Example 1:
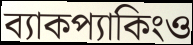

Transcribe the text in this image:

ব্যাকপ্যাকিংও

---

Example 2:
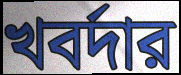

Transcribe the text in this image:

খবর্দার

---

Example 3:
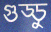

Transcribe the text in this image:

গুড্ডু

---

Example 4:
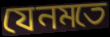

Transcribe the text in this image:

যেনমতে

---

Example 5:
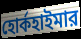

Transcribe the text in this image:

হোর্কহাইমার